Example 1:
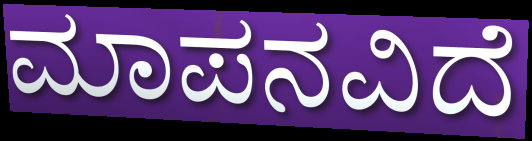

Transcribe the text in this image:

ಮಾಪನವಿದೆ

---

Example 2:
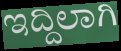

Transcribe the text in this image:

ಇದ್ದಿಲಾಗಿ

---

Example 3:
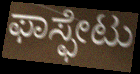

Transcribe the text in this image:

ಫಾಸ್ಫೇಟು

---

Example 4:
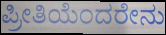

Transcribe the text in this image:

ಪ್ರೀತಿಯೆಂದರೇನು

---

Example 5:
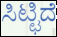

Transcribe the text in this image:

ಸಿಟ್ಟಿದೆ